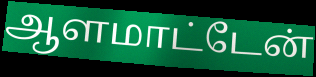
ஆளமாட்டேன்